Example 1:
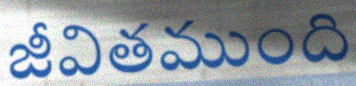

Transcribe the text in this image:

జీవితముంది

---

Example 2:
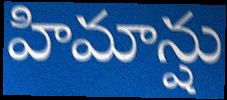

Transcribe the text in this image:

హిమాన్షు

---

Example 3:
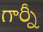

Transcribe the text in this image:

గార్నీ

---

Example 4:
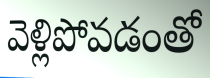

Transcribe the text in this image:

వెళ్లిపోవడంతో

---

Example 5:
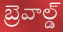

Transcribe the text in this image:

బ్రెవాల్డ్